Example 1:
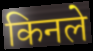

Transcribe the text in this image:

किनले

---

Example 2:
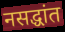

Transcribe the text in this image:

नसद्धांत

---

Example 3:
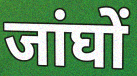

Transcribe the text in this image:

जांघों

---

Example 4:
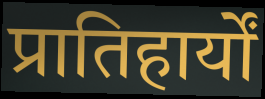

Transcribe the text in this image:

प्रातिहार्यों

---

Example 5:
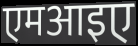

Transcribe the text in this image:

एमआइए